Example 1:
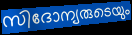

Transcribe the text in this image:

സിദോന്യരുടെയും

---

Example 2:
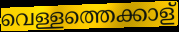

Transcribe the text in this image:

വെള്ളത്തെക്കാള്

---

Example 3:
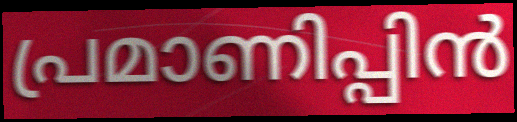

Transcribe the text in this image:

പ്രമാണിപ്പിൻ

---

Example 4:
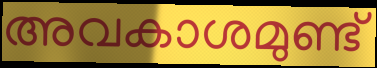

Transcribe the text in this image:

അവകാശമുണ്ട്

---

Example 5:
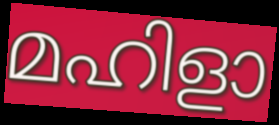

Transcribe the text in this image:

മഹിളാ